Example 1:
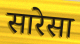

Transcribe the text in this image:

सारेसा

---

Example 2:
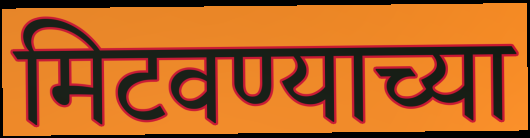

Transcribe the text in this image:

मिटवण्याच्या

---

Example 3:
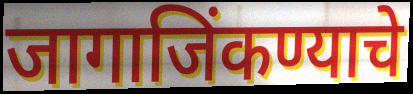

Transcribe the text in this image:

जागाजिंकण्याचे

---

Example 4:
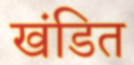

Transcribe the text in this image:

खंडित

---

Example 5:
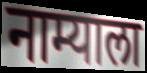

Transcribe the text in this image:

नाम्याला